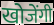
खोजेंगी